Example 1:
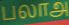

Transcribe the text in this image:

பலாஅ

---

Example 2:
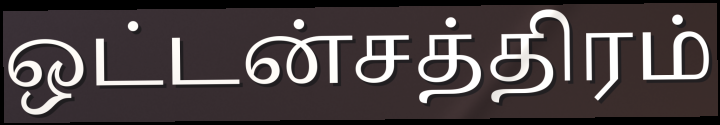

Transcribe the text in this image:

ஒட்டன்சத்திரம்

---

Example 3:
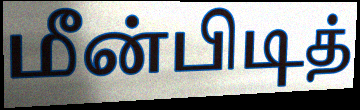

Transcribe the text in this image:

மீன்பிடித்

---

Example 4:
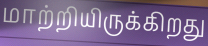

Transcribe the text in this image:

மாற்றியிருக்கிறது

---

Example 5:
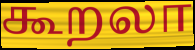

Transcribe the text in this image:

கூறலா